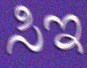
ಸಿಇ